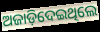
ଅଜାଡ଼ିଦେଇଥିଲେ